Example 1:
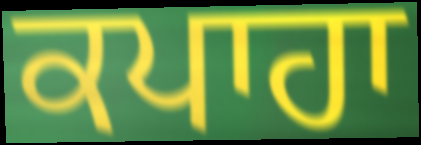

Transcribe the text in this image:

ਕਪਾਹਾ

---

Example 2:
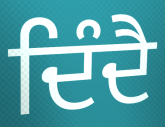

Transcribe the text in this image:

ਦਿੰਦੈ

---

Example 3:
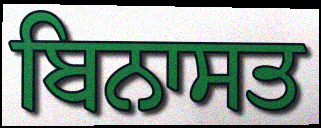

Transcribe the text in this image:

ਬਿਨਾਸਤ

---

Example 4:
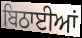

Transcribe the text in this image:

ਬਿਠਾਈਆਂ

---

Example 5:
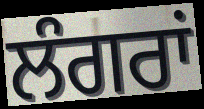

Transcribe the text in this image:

ਲੰਗਰਾਂ